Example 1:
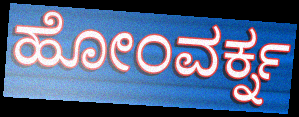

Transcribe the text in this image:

ಹೋಂವರ್ಕ್ನ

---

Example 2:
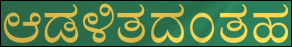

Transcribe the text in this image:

ಆಡಳಿತದಂತಹ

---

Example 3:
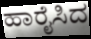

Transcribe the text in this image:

ಹಾರೈಸಿದ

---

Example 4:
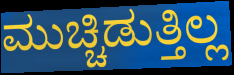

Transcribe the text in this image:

ಮುಚ್ಚಿಡುತ್ತಿಲ್ಲ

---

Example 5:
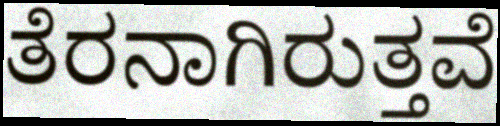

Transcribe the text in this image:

ತೆರನಾಗಿರುತ್ತವೆ